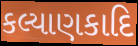
કલ્યાણકાદિ